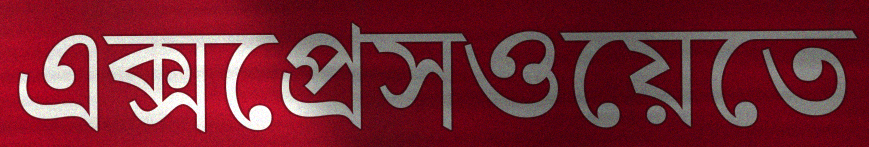
এক্সপ্রেসওয়েতে